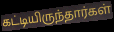
கட்டியிருந்தார்கள்